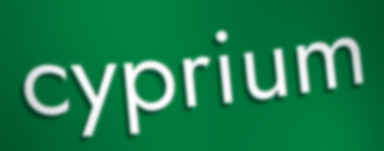
cyprium